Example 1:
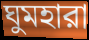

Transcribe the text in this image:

ঘুমহারা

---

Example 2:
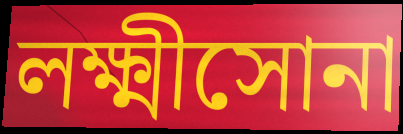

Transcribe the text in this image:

লক্ষ্মীসোনা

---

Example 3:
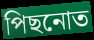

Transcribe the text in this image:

পিছনোত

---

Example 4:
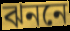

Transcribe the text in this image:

ঝননে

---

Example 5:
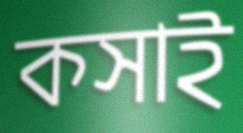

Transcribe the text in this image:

কসাই